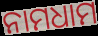
ନାମଧାମ